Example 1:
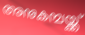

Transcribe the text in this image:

അനുകമ്പയ്ക്ക്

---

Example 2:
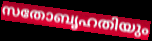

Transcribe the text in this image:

സതോബൃഹതിയും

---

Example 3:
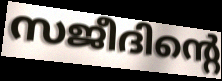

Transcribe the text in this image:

സജീദിന്റെ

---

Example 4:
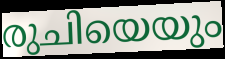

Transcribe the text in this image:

രുചിയെയും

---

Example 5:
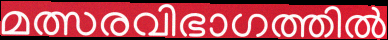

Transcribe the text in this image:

മത്സരവിഭാഗത്തിൽ